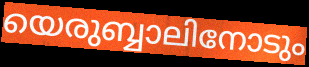
യെരുബ്ബാലിനോടും